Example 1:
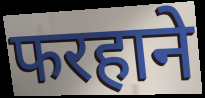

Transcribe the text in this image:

फरहाने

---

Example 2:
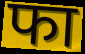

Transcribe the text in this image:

फा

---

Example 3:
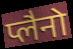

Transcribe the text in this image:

प्लैनो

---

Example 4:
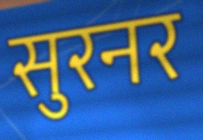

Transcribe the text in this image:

सुरनर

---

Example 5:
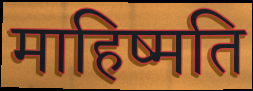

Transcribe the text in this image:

माहिष्मति